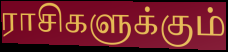
ராசிகளுக்கும்